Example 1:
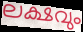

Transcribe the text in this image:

ലക്ഷവും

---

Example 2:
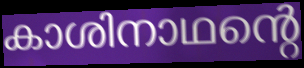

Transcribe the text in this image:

കാശിനാഥന്റെ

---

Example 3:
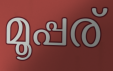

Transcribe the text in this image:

മൂപ്പര്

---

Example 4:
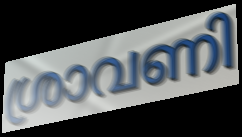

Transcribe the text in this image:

ശ്രാവണി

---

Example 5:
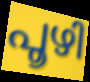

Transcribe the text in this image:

പൂഴി